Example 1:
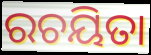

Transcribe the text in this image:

ରଚୟିତା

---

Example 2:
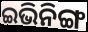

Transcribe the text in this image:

ଇଭିନିଙ୍ଗ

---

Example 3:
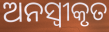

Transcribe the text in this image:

ଅନସ୍ବୀକୃତ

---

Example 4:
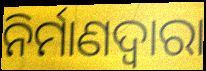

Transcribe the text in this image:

ନିର୍ମାଣଦ୍ୱାରା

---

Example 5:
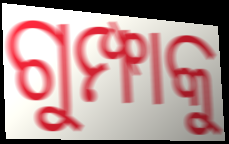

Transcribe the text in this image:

ଗୁମ୍ଫାକୁ